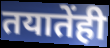
तयातेंही